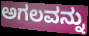
ಅಗಲವನ್ನು